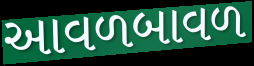
આવળબાવળ